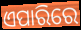
ଏପାରିରେ